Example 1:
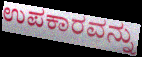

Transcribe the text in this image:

ಉಪಕಾರವನ್ನು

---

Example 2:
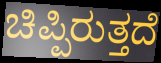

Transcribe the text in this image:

ಚಿಪ್ಪಿರುತ್ತದೆ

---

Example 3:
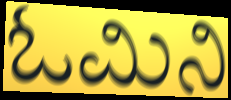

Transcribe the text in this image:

ಓಮಿನಿ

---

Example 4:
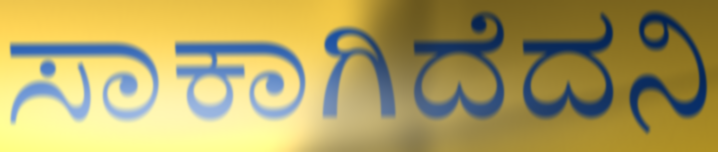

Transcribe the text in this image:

ಸಾಕಾಗಿದೆದನಿ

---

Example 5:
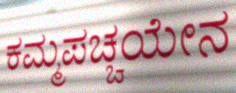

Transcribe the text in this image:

ಕಮ್ಮಪಚ್ಚಯೇನ